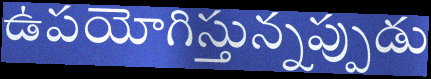
ఉపయోగిస్తున్నప్పుడు